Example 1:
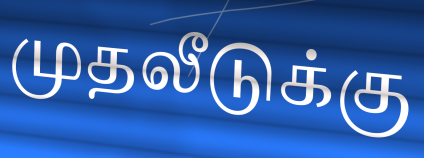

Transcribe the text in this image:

முதலீடுக்கு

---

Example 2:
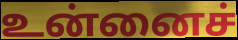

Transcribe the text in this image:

உன்னைச்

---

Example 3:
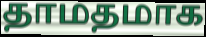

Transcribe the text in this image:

தாமதமாக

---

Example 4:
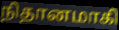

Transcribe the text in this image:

நிதானமாகி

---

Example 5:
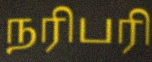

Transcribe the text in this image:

நரிபரி